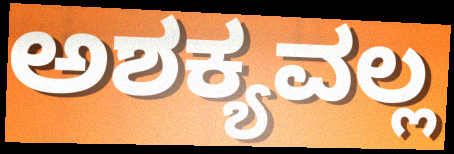
ಅಶಕ್ಯವಲ್ಲ